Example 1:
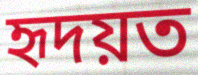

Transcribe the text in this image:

হৃদয়ত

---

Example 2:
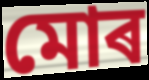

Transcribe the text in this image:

মোৰ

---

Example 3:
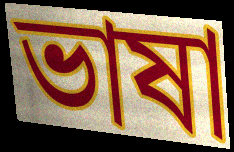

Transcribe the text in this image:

ভাষা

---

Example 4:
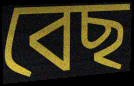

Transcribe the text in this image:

বেছ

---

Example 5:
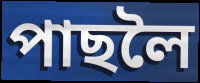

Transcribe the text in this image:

পাছলৈ